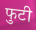
फुटी